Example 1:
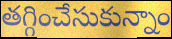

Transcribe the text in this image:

తగ్గించేసుకున్నాం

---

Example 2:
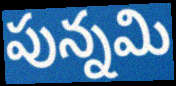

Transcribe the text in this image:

పున్నమి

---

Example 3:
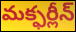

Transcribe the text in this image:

మక్ఫర్లీన్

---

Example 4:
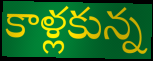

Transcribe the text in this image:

కాళ్లకున్న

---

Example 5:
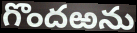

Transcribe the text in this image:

గొందఱను